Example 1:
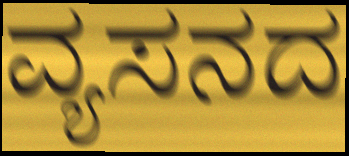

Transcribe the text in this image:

ವ್ಯಸನದ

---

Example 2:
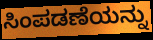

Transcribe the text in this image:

ಸಿಂಪಡಣೆಯನ್ನು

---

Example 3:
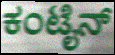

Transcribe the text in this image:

ಕಂಟೈನ್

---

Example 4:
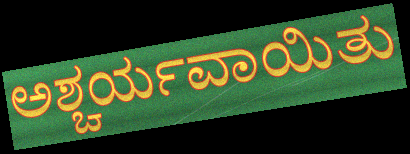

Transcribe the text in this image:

ಅಶ್ಚರ್ಯವಾಯಿತು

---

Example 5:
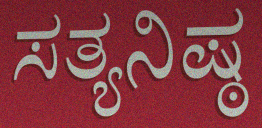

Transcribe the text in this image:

ಸತ್ಯನಿಷ್ಠ